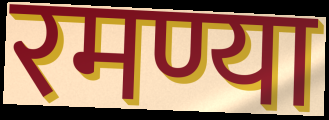
रमण्या